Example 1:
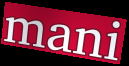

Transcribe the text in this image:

mani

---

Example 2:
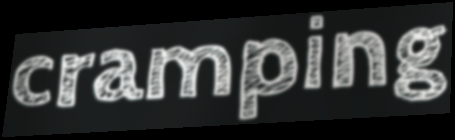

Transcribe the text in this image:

cramping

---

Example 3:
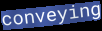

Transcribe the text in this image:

conveying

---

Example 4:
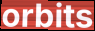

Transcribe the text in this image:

orbits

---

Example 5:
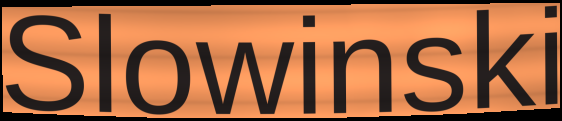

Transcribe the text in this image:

Slowinski